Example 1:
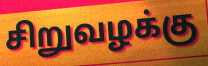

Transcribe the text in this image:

சிறுவழக்கு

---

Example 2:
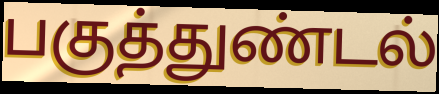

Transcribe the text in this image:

பகுத்துண்டல்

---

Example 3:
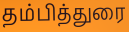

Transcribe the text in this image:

தம்பித்துரை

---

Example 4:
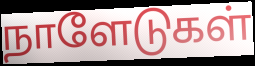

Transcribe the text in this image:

நாளேடுகள்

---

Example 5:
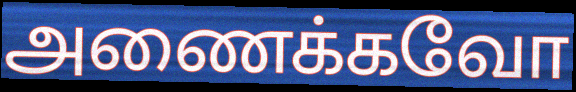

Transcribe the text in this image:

அணைக்கவோ